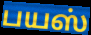
பயஸ்